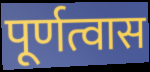
पूर्णत्वास